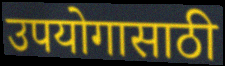
उपयोगासाठी